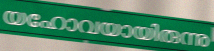
യഹോവയായിരുന്നു